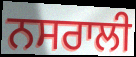
ਨਸਰਾਲੀ